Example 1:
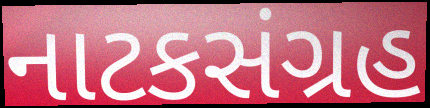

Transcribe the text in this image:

નાટકસંગ્રહ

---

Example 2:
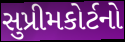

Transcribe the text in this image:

સુપ્રીમકોર્ટનો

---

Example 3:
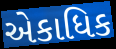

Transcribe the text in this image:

એકાધિક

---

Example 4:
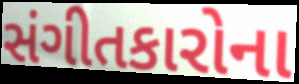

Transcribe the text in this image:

સંગીતકારોના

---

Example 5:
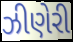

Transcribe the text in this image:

ઝીણેરી